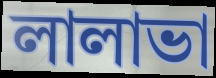
লালাভা